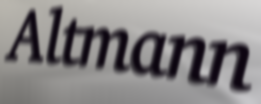
Altmann